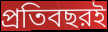
প্রতিবছরই